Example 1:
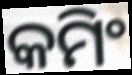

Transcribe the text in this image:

କମିଂ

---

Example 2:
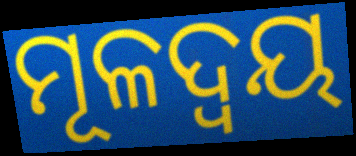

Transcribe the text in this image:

ମୂଳଦ୍ଵୟ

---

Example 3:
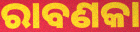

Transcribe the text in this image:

ରାବଣକା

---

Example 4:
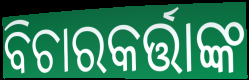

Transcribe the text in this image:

ବିଚାରକର୍ତ୍ତାଙ୍କ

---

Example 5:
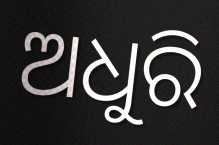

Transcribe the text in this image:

ଅଧୁରି